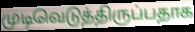
முடிவெடுத்திருப்பதாக